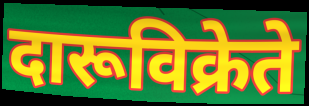
दारूविक्रेते